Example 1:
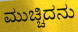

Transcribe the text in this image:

ಮುಚ್ಚಿದನು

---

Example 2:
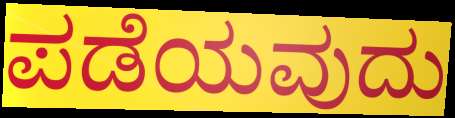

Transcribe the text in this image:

ಪಡೆಯವುದು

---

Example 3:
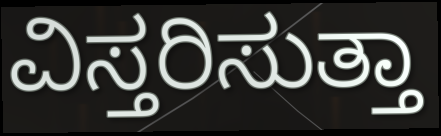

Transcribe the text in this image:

ವಿಸ್ತರಿಸುತ್ತಾ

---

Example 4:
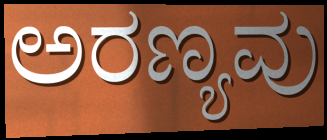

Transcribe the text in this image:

ಅರಣ್ಯವು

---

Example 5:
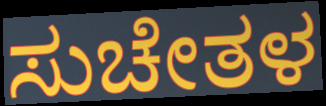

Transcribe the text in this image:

ಸುಚೇತಳ